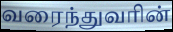
வரைந்துவரின்